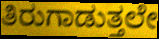
ತಿರುಗಾಡುತ್ತಲೇ